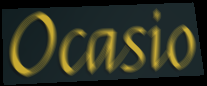
Ocasio